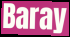
Baray